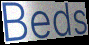
Beds